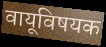
वायूविषयक